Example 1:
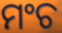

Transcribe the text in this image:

ମଂଚ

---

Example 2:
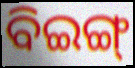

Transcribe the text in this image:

ବିଇଙ୍ଗ୍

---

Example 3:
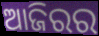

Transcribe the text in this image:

ଆଜିରର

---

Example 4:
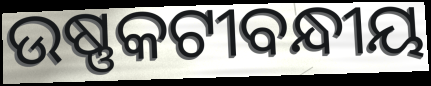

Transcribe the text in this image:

ଉଷ୍ଣକଟୀବନ୍ଧୀୟ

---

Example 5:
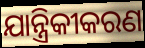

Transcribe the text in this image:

ଯାନ୍ତ୍ରିକୀକରଣ